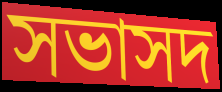
সভাসদ